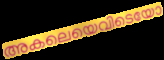
അകലെയെവിടെയോ